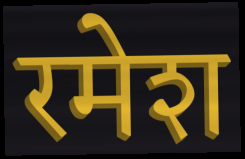
रमेश